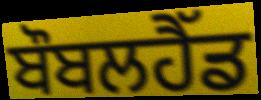
ਬੌਬਲਹੈੱਡ